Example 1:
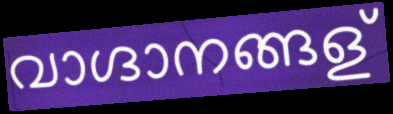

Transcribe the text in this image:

വാഗ്ദാനങ്ങള്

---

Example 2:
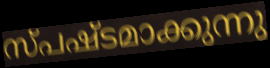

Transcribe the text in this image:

സ്പഷ്ടമാക്കുന്നു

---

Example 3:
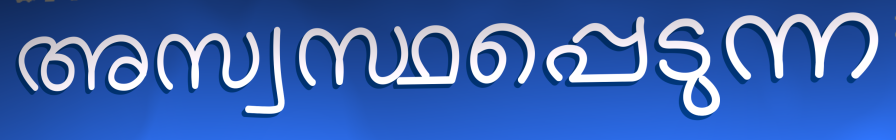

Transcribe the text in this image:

അസ്വസ്ഥപ്പെടുന്ന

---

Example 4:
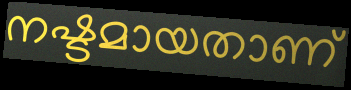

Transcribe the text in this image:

നഷ്ടമായതാണ്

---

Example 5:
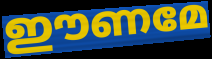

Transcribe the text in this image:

ഈണമേ